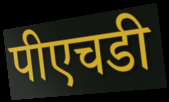
पीएचडी